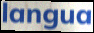
langua